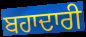
ਬਹਾਦਾਰੀ